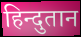
हिन्दुतान